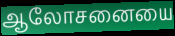
ஆலோசனையை